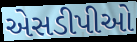
એસડીપીઓ